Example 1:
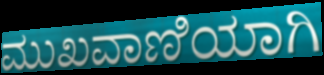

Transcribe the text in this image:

ಮುಖವಾಣಿಯಾಗಿ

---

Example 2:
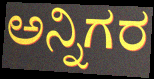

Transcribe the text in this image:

ಅನ್ನಿಗರ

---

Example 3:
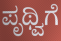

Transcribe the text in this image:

ಪೃಥ್ವಿಗೆ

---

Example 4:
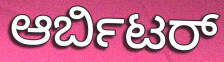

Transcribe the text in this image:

ಆರ್ಬಿಟರ್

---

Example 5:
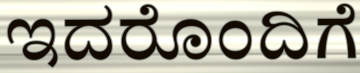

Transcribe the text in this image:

ಇದರೊಂದಿಗೆ